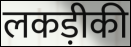
लकड़ीकी